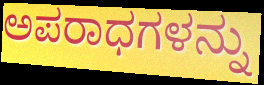
ಅಪರಾಧಗಳನ್ನು